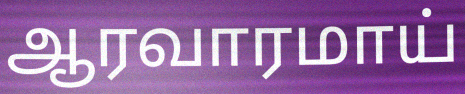
ஆரவாரமாய்